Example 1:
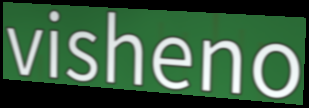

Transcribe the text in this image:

visheno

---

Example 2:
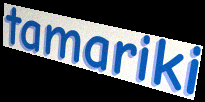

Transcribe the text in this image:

tamariki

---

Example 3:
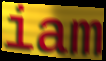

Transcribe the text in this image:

iam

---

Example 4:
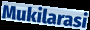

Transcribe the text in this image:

Mukilarasi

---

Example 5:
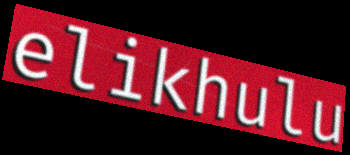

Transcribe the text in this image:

elikhulu